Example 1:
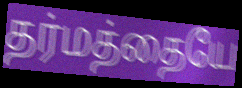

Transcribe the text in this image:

தர்மத்தையே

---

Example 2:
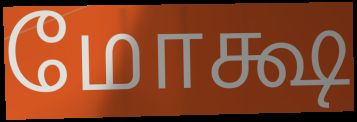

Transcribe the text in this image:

மோக்ஷ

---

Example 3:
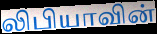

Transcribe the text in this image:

லிபியாவின்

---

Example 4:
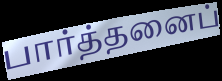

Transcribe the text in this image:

பார்த்தனைப்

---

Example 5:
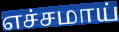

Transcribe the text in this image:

எச்சமாய்